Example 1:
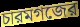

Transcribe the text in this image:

চারমগজের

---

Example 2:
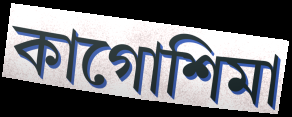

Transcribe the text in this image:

কাগোশিমা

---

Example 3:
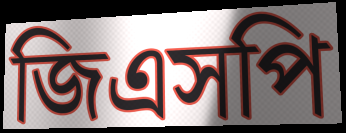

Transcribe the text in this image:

জিএসপি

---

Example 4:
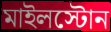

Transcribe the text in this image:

মাইলস্টোন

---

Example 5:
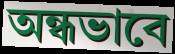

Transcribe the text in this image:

অন্ধভাবে